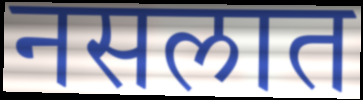
नसलात